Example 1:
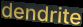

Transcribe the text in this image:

dendrite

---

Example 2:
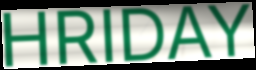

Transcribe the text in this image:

HRIDAY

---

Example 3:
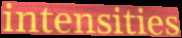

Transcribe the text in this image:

intensities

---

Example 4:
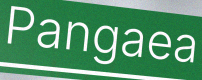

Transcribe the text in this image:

Pangaea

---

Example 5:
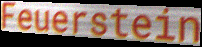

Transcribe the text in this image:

Feuerstein